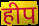
हीप